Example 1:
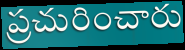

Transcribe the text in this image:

ప్రచురించారు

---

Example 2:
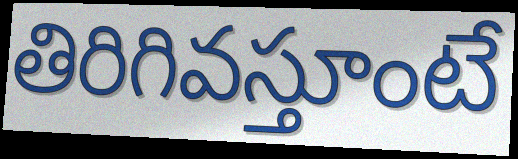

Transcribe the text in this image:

తిరిగివస్తూంటే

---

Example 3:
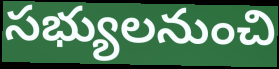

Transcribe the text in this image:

సభ్యులనుంచి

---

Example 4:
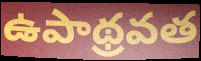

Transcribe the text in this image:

ఉపాథ్రవత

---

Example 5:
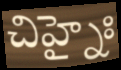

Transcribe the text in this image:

చిహ్నైః